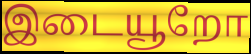
இடையூறோ